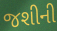
જશીની